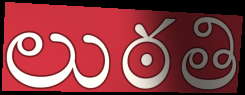
లుఠతి